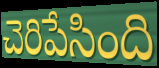
చెరిపేసింది